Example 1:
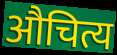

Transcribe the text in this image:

औचित्य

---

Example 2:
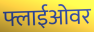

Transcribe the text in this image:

फ्लाईओवर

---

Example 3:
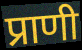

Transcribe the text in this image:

प्राणी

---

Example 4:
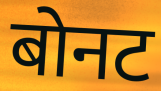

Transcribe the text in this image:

बोनट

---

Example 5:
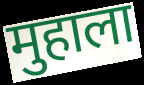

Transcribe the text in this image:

मुहाला